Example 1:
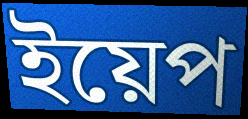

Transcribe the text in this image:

ইয়েপ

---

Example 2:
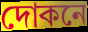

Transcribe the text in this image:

দোকনে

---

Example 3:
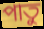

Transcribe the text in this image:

পাতু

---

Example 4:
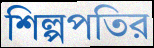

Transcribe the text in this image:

শিল্পপতির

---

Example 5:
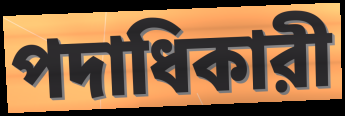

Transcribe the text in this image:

পদাধিকারী